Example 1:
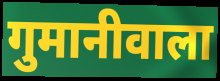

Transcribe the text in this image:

गुमानीवाला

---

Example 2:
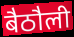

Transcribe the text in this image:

बैठौली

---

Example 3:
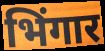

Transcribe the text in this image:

भिंगार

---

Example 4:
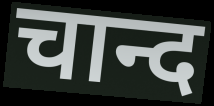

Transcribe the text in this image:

चान्द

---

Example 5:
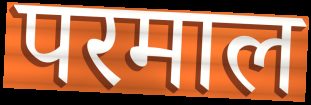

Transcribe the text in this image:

परमाल